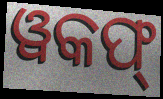
ୱକଫ୍